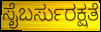
ಸೈಬರ್ಸುರಕ್ಷತೆ